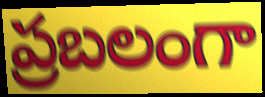
ప్రబలంగా